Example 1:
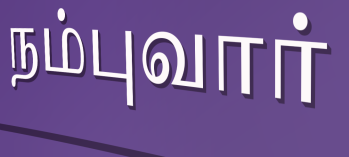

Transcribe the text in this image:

நம்புவார்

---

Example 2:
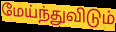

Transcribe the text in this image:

மேய்ந்துவிடும்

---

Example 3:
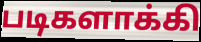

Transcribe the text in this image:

படிகளாக்கி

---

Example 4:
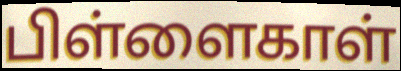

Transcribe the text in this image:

பிள்ளைகாள்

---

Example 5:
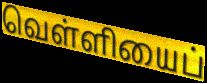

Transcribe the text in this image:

வெள்ளியைப்